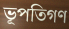
ভূপতিগণ